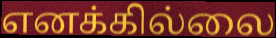
எனக்கில்லை